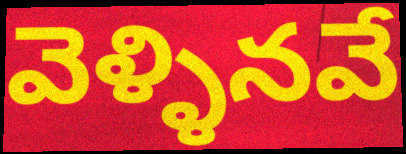
వెళ్ళినవే